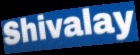
Shivalay